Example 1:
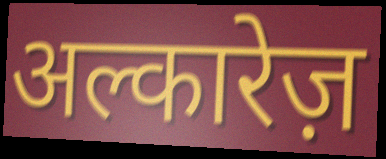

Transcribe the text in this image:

अल्कारेज़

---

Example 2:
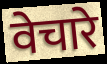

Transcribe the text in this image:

वेचारे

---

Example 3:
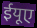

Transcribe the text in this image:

ईयूए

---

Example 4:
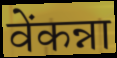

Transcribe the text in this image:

वेंकन्ना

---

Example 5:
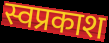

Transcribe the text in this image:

स्वप्रकाश